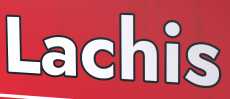
Lachis